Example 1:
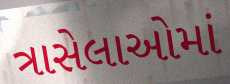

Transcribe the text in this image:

ત્રાસેલાઓમાં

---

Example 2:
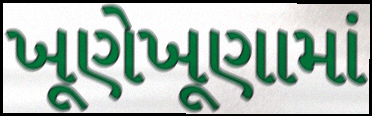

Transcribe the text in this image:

ખૂણેખૂણામાં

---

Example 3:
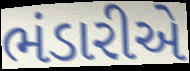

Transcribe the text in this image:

ભંડારીએ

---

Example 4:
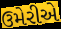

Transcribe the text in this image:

ઉમેરીએ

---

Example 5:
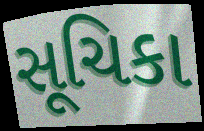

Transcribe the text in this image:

સૂચિકા